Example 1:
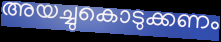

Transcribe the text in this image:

അയച്ചുകൊടുക്കണം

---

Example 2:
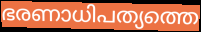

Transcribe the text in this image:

ഭരണാധിപത്യത്തെ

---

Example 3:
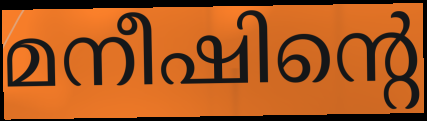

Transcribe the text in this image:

മനീഷിന്റെ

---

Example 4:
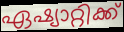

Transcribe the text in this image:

ഏഷ്യാറ്റിക്ക്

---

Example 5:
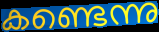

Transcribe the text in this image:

കണ്ടെന്നു